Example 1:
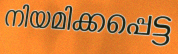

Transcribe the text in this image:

നിയമിക്കപ്പെട്ട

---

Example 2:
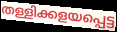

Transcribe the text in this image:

തള്ളിക്കളയപ്പെട്ട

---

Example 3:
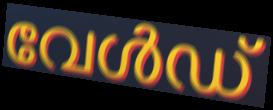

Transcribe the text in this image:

വേൾഡ്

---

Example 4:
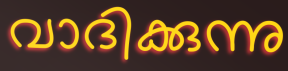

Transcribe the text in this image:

വാദിക്കുന്നു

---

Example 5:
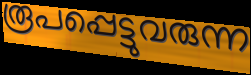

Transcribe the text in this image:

രൂപപ്പെട്ടുവരുന്ന